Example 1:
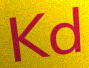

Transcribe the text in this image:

Kd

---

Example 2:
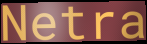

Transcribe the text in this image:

Netra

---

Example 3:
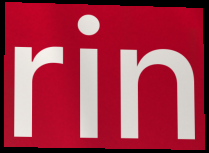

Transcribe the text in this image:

rin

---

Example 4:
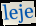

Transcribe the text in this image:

leje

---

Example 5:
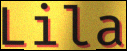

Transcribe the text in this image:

Lila